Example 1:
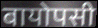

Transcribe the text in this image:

बायोपसी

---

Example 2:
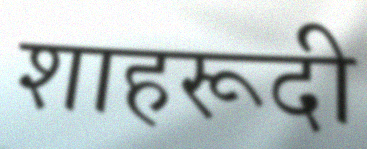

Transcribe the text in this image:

शाहरूदी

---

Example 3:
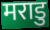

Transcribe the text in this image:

मराडु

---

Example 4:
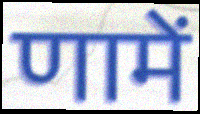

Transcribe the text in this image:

णामें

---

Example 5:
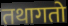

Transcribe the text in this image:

तथागतो